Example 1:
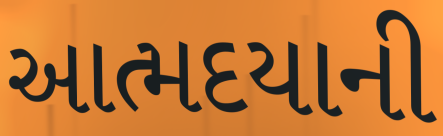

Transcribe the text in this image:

આત્મદયાની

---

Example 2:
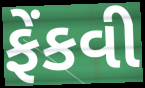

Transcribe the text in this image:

ફેંકવી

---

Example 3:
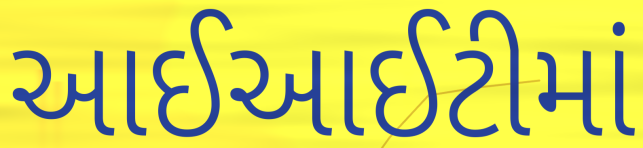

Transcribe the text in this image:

આઈઆઈટીમાં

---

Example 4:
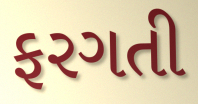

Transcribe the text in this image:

ફરગતી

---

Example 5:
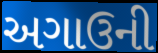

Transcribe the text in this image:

અગાઉની